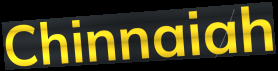
Chinnaiah